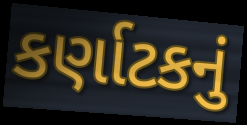
કર્ણાટકનું